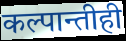
कल्पान्तीही